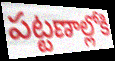
పట్టణాల్లోకి